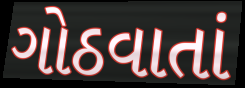
ગોઠવાતાં